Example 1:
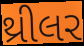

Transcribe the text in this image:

થ્રીલર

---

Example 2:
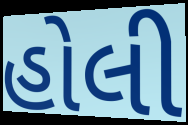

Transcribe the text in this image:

હોલી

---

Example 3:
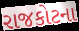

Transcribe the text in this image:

રાજકોટના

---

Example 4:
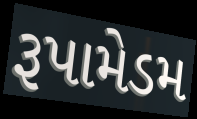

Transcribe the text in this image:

રૂપામેડમ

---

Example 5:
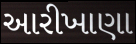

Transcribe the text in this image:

આરીખાણા